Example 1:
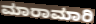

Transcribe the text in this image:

ಮಾರಾಮಾರಿ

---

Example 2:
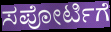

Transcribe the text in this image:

ಸಪೋರ್ಟಿಗೆ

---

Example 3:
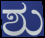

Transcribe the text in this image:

ಶು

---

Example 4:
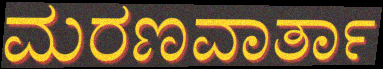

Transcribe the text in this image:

ಮರಣವಾರ್ತಾ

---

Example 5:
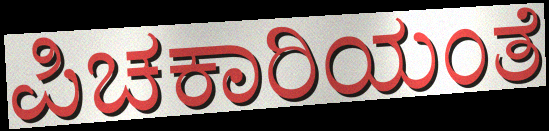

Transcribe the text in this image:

ಪಿಚಕಾರಿಯಂತೆ